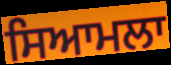
ਸਿਆਮਲਾ